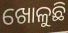
ଖୋଳୁଛି